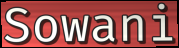
Sowani